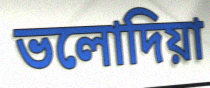
ভলোদিয়া